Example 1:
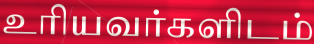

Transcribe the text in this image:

உரியவர்களிடம்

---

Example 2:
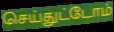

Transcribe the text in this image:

செய்துட்டோம்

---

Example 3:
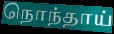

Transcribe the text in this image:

நொந்தாய்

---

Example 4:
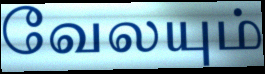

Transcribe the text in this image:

வேலயும்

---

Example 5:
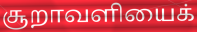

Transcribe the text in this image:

சூறாவளியைக்